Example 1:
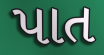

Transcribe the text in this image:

પાત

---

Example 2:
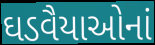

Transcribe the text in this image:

ઘડવૈયાઓનાં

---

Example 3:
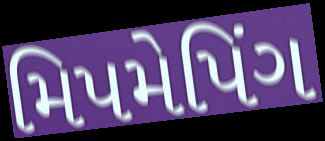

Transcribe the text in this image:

મિપમેપિંગ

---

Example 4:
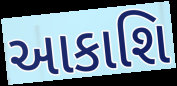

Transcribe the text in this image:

આકાશિ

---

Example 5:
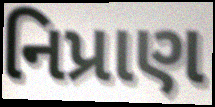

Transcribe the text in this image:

નિપ્રાણ